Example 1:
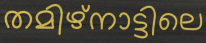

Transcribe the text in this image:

തമിഴ്നാട്ടിലെ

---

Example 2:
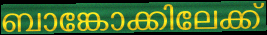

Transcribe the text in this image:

ബാങ്കോക്കിലേക്ക്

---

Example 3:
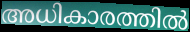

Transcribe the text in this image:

അധികാരത്തിൽ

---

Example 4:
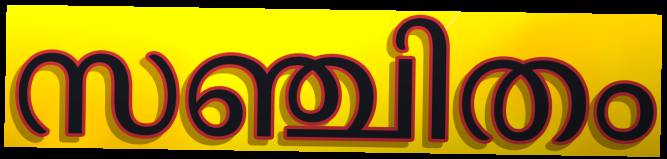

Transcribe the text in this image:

സഞ്ചിതം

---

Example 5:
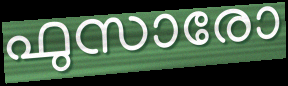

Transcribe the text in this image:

ഫുസാരോ